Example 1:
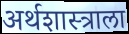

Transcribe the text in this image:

अर्थशास्त्राला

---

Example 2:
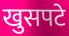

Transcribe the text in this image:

खुसपटे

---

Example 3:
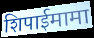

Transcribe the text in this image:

शिपाईमामा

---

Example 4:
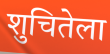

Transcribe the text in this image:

शुचितेला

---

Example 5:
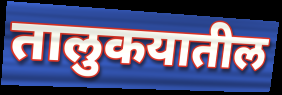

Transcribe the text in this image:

तालुकयातील